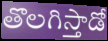
తొలగిస్తాడో